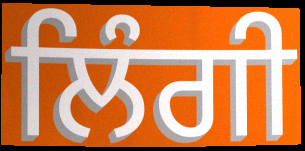
ਲਿੰਗੀ